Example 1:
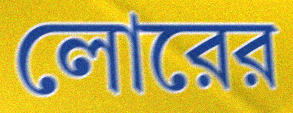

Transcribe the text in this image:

লোরের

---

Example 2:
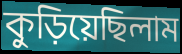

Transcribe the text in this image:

কুড়িয়েছিলাম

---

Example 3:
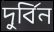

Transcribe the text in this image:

দুর্বিন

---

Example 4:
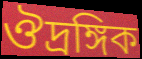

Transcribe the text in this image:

ঔদ্রঙ্গিক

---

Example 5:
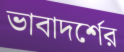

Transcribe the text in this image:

ভাবাদর্শের